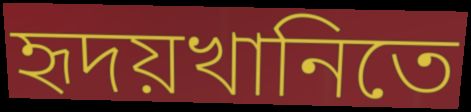
হৃদয়খানিতে